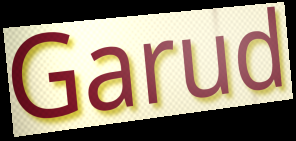
Garud